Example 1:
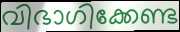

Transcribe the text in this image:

വിഭാഗിക്കേണ്ട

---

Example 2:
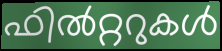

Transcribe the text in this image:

ഫിൽറ്ററുകൾ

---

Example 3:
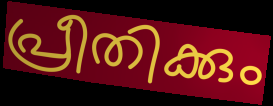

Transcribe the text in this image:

പ്രീതിക്കും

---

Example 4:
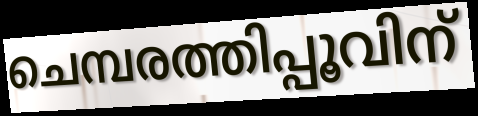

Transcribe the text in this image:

ചെമ്പരത്തിപ്പൂവിന്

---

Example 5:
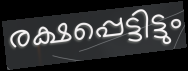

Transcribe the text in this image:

രക്ഷപ്പെട്ടിട്ടും